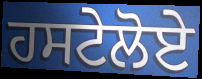
ਹਸਟੇਲੋਏ